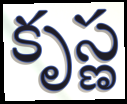
కృస్ణ